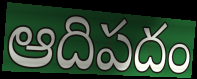
ఆదిపదం